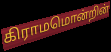
கிராமமொன்றின்